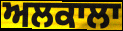
ਅਲਕਾਲਾ